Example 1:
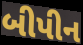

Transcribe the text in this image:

બીપીન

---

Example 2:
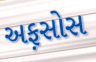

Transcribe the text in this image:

અફ઼સોસ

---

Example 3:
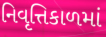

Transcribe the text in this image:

નિવૃત્તિકાળમાં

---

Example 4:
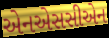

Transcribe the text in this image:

એનએસસીએન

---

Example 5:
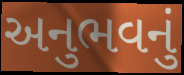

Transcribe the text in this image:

અનુભવનું